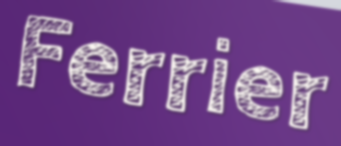
Ferrier